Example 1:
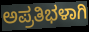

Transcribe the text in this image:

ಅಪ್ರತಿಭಳಾಗಿ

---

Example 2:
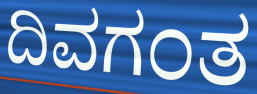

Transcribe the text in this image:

ದಿವಗಂತ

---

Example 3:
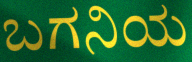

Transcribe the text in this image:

ಬಗನಿಯ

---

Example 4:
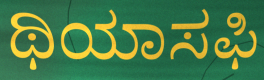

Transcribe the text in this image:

ಥಿಯಾಸಫಿ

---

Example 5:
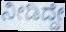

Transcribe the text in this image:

ನೀಡಿದ್ದೇ